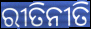
ରୀତିନୀତି